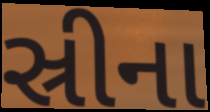
સ્રીના